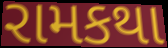
રામકથા